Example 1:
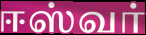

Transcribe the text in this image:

ஈஸ்வர்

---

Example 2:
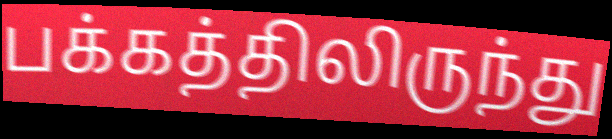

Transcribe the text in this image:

பக்கத்திலிருந்து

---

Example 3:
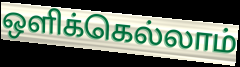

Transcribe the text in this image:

ஒளிக்கெல்லாம்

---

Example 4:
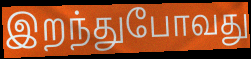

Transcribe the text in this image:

இறந்துபோவது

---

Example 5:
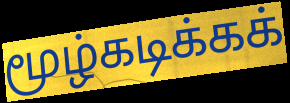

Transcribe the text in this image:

மூழ்கடிக்கக்